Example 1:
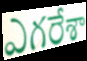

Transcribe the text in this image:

ఎగరేశా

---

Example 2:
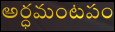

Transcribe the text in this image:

అర్ధమంటపం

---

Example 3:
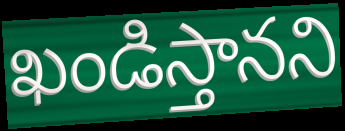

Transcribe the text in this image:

ఖండిస్తానని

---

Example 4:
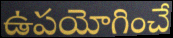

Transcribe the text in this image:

ఉపయోగించే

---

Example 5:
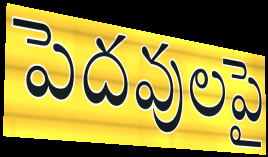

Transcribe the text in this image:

పెదవులపై